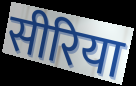
सीरिया